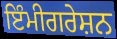
ਇੰਮੀਗਰੇਸ਼ਨ